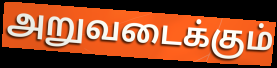
அறுவடைக்கும்